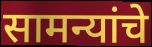
सामन्यांचे